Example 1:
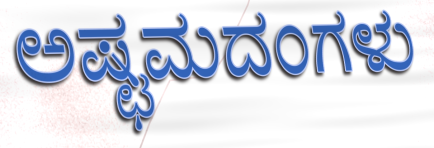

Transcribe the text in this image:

ಅಷ್ಟಮದಂಗಳು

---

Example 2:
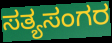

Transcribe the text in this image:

ಸತ್ಯಸಂಗರ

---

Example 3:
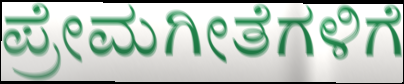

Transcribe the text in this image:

ಪ್ರೇಮಗೀತೆಗಳಿಗೆ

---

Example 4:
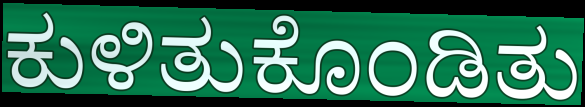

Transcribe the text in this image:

ಕುಳಿತುಕೊಂಡಿತು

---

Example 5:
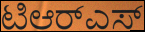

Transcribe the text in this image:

ಟಿಆರ್‌ಎಸ್